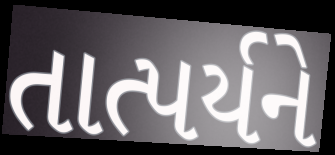
તાત્પર્યને